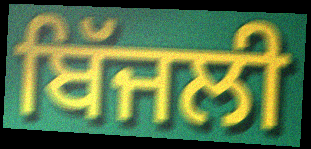
ਬਿੱਜਲੀ